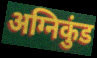
अग्निकुंड